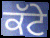
ਕੱਟੇ